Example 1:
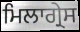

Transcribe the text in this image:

ਮਿਲਾਗ੍ਰੇਸ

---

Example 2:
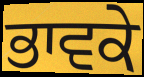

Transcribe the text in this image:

ਭਾਵਕੇ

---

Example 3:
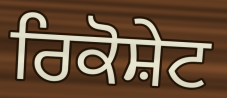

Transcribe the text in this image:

ਰਿਕੋਸ਼ੇਟ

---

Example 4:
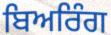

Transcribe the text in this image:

ਬਿਅਰਿੰਗ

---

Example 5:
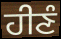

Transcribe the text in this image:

ਹੀਣੰ